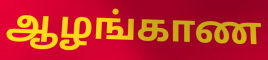
ஆழங்காண